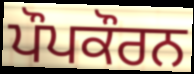
ਪੌਪਕੌਰਨ